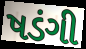
ષડંગી